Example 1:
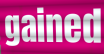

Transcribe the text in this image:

gained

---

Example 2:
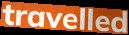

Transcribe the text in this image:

travelled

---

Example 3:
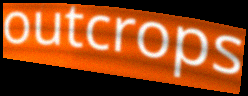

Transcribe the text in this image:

outcrops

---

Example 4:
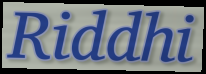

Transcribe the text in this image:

Riddhi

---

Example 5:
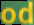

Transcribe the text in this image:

od